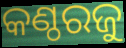
କଣ୍ଠରଜୁ